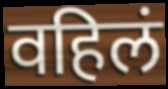
वहिलं